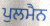
ਪੁਲਮੈਨ